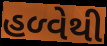
હળ્વેથી